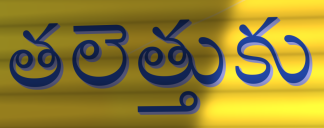
తలెత్తుకు